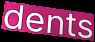
dents